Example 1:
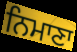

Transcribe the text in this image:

ਨਿਮਾਣਾ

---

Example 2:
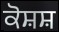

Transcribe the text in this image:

ਕੋਸ਼ਸ਼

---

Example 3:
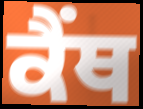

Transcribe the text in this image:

ਕੈਂਥ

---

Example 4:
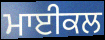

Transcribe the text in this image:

ਮਾਈਕਲ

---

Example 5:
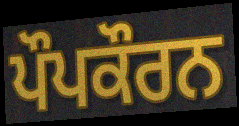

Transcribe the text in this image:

ਪੌਪਕੌਰਨ